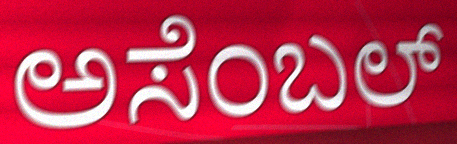
ಅಸೆಂಬಲ್